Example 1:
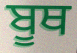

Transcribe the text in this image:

ਬੂਥ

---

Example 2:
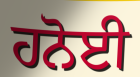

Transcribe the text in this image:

ਹਨੋਈ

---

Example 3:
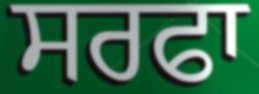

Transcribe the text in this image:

ਸਰਫਾ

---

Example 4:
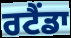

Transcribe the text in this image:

ਰਟੈਂਡਾ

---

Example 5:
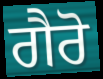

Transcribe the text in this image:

ਗੈਰੋ